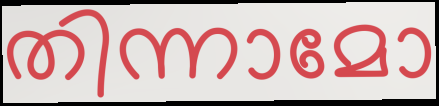
തിന്നാമോ